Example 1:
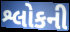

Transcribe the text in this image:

શ્લોકની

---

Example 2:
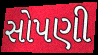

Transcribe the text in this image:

સોપણી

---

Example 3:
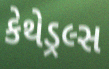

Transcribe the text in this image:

કેથેડ્રલ્સ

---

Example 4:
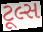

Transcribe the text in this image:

ટૂલ્સ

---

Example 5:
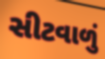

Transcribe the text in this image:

સીટવાળું